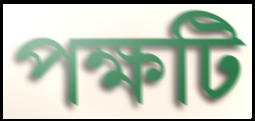
পক্ষটি